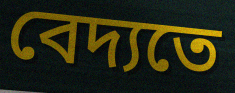
বেদ্যতে